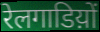
रेलगाडिय़ों